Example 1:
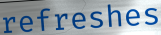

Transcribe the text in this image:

refreshes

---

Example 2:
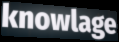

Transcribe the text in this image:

knowlage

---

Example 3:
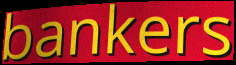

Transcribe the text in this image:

bankers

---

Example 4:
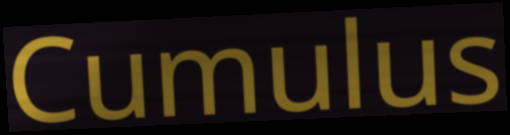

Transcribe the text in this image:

Cumulus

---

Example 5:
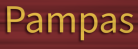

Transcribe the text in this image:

Pampas